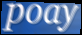
poay